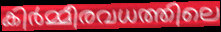
കിർമ്മീരവധത്തിലെ